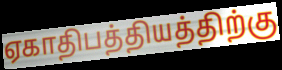
ஏகாதிபத்தியத்திற்கு